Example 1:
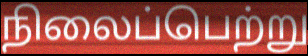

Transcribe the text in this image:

நிலைப்பெற்று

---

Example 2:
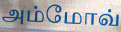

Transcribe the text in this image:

அம்மோவ்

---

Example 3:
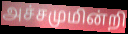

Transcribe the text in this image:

அச்சமுமின்றி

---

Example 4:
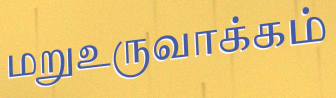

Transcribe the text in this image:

மறுஉருவாக்கம்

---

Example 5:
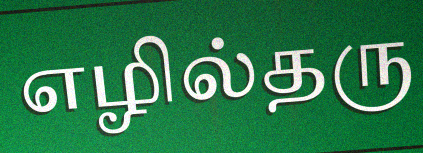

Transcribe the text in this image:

எழில்தரு